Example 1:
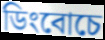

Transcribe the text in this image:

ডিংবোচে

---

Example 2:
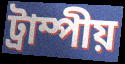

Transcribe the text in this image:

ট্রাম্পীয়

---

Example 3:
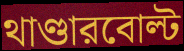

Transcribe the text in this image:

থাণ্ডারবোল্ট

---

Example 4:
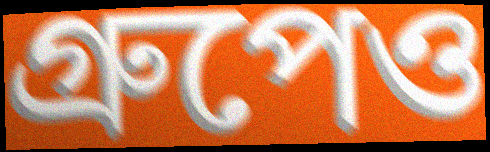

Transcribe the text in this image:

গ্রুপেও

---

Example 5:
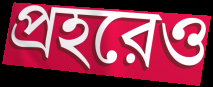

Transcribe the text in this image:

প্রহরেও